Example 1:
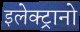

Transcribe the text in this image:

इलेक्ट्रानो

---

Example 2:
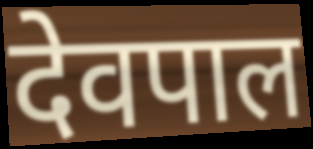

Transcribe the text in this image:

देवपाल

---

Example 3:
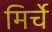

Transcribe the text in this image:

मिर्चे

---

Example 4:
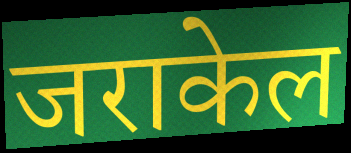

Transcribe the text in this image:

जराकेल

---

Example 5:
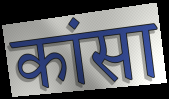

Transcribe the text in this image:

कांसा